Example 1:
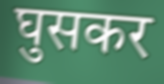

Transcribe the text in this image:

घुसकर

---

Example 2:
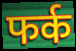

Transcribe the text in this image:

फर्क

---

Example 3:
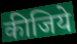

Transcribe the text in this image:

कीजिये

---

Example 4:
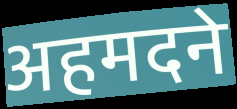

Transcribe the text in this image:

अहमदने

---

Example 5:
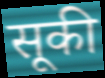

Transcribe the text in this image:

सूकी